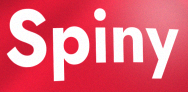
Spiny